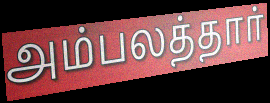
அம்பலத்தார்